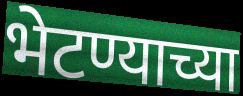
भेटण्याच्या